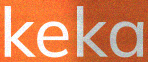
keka